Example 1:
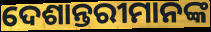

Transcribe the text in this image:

ଦେଶାନ୍ତରୀମାନଙ୍କ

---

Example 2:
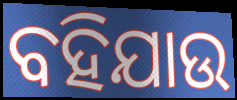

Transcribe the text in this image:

ବହିଯାଉ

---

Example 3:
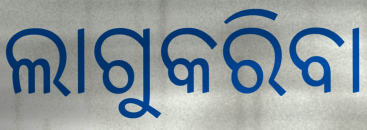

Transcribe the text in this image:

ଲାଗୁକରିବା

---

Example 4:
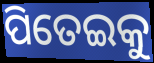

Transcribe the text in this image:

ପିତେଇକୁ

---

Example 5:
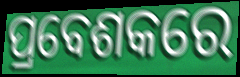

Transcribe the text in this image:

ପ୍ରବେଶକରେ